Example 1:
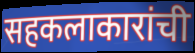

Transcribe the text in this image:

सहकलाकारांची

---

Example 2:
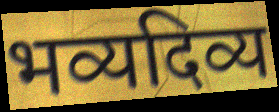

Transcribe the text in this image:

भव्यदिव्य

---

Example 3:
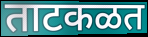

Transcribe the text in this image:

ताटकळत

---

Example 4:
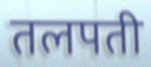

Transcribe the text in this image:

तलपती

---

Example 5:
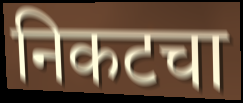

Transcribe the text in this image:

निकटचा